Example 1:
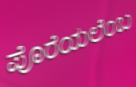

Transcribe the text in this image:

ಪೊರೆಯಲೆಂಬ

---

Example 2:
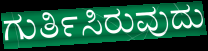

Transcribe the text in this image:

ಗುರ್ತಿಸಿರುವುದು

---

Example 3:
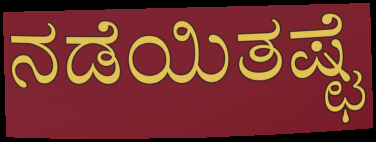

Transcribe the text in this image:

ನಡೆಯಿತಷ್ಟೆ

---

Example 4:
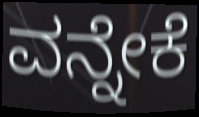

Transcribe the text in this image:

ವನ್ನೇಕೆ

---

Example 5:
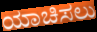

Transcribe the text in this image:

ಯಾಚಿಸಲು